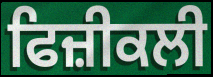
ਫਿਜ਼ੀਕਲੀ